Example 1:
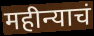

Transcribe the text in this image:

महीन्याचं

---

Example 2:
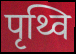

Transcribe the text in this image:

पृथ्वि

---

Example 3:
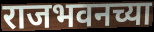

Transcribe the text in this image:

राजभवनच्या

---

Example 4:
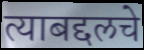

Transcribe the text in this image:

त्याबद्दलचे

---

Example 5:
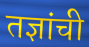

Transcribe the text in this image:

तज्ञांची